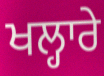
ਖਲ੍ਹਾਰੇ